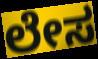
ಲೇಸ